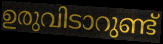
ഉരുവിടാറുണ്ട്